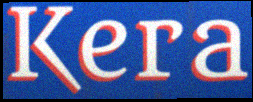
Kera